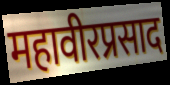
महावीरप्रसाद